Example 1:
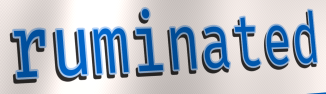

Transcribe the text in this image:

ruminated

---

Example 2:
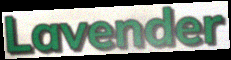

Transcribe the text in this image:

Lavender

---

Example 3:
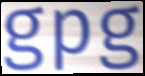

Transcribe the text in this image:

gpg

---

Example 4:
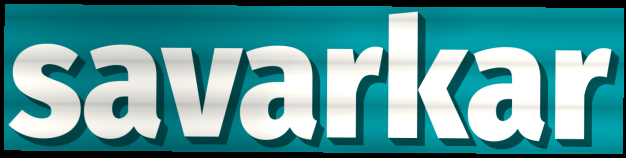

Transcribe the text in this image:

savarkar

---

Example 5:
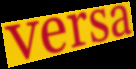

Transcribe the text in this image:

versa